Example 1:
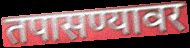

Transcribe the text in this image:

तपासण्यावर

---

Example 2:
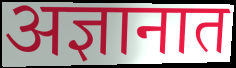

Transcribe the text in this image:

अज्ञानात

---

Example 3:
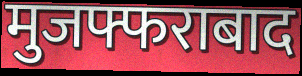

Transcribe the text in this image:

मुजफ्फराबाद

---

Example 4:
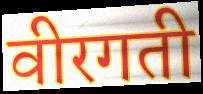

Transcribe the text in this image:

वीरगती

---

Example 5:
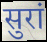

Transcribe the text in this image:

सुरां